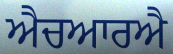
ਐਚਆਰਐ